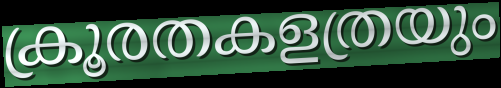
ക്രൂരതകളത്രയും